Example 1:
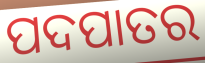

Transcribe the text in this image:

ପଦପାତର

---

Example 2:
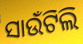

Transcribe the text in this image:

ସାଉଁଟିଲି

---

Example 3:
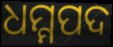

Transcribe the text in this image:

ଧମ୍ମପଦ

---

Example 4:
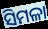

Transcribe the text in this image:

ସିମଳା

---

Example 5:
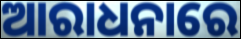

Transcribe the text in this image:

ଆରାଧନାରେ